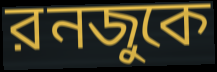
রনজুকে